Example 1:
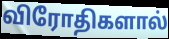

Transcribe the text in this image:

விரோதிகளால்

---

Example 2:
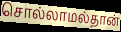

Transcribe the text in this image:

சொல்லாமல்தான்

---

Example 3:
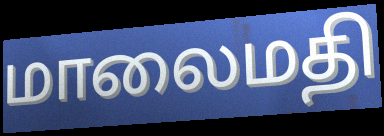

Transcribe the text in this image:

மாலைமதி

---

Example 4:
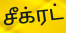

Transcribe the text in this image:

சீக்ரட்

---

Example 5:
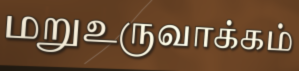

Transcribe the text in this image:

மறுஉருவாக்கம்